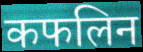
कफलिन